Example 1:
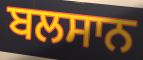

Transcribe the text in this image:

ਬਲਸਾਨ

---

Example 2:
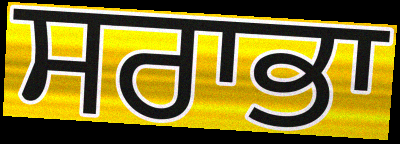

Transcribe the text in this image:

ਸਰਾਭਾ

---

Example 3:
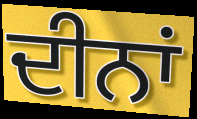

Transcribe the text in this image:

ਦੀਨਾਂ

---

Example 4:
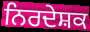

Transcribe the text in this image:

ਨਿਰਦੇਸ਼ਕ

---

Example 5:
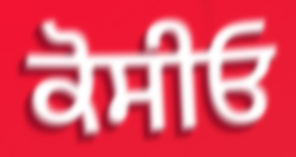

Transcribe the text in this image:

ਕੋਸੀਓ